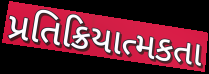
પ્રતિક્રિયાત્મકતા